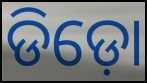
ଡିଡ଼ୋ